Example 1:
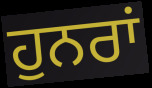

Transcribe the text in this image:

ਹੁਨਰਾਂ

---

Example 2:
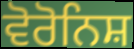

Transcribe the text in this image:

ਵੋਰੋਨਿਸ਼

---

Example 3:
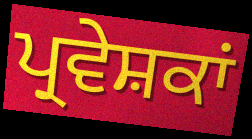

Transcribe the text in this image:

ਪ੍ਰਵੇਸ਼ਕਾਂ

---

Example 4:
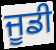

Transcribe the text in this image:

ਜੂਡੀ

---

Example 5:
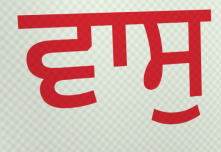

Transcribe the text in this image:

ਵਾਸੁ